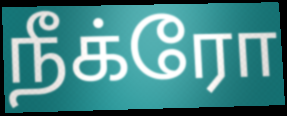
நீக்ரோ